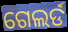
ଗେଲର୍ଡ